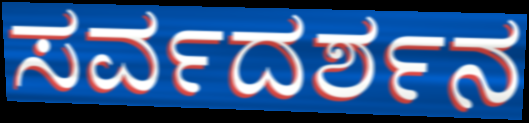
ಸರ್ವದರ್ಶನ